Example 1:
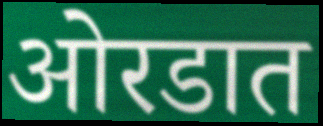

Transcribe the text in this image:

ओरडात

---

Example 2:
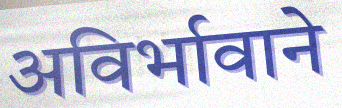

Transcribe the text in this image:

अविर्भावाने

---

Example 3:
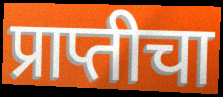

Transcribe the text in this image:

प्राप्तीचा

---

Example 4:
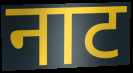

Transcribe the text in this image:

नाट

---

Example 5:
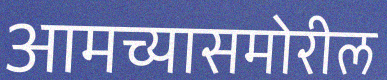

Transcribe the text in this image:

आमच्यासमोरील